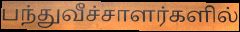
பந்துவீச்சாளர்களில்